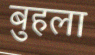
बुहला